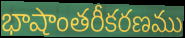
భాషాంతరీకరణము